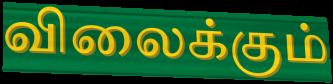
விலைக்கும்